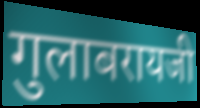
गुलाबरायजी